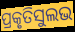
ପ୍ରକୃତିସୁଲଭ